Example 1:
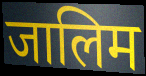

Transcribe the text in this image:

जालिम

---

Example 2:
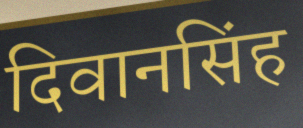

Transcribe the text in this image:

दिवानसिंह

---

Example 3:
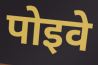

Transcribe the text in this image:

पोइवे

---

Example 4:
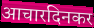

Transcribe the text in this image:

आचारदिनकर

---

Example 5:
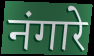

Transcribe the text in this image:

नंगारे